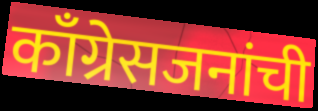
काँग्रेसजनांची